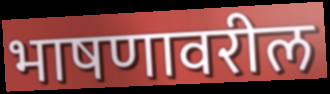
भाषणावरील